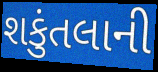
શકુંતલાની